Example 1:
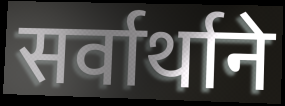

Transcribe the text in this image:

सर्वार्थाने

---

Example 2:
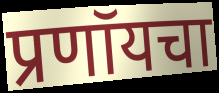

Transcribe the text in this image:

प्रणॉयचा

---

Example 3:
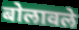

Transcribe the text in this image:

बोलावले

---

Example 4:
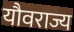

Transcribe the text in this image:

यौवराज्य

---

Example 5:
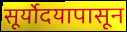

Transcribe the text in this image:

सूर्योदयापासून